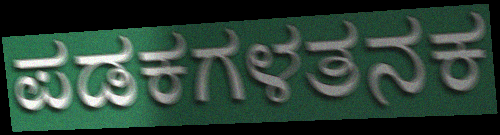
ಪಡಕಗಳತನಕ